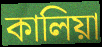
কালিয়া